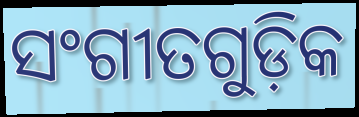
ସଂଗୀତଗୁଡ଼ିକ